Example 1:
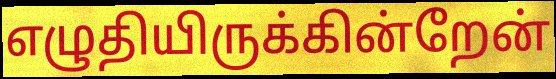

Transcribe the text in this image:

எழுதியிருக்கின்றேன்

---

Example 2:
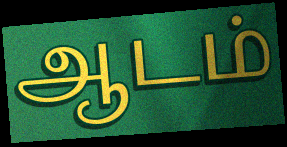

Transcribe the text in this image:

ஆடம்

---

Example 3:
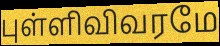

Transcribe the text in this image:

புள்ளிவிவரமே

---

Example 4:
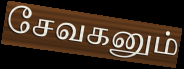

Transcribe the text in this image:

சேவகனும்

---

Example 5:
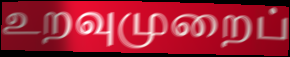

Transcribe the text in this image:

உறவுமுறைப்